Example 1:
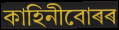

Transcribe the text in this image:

কাহিনীবোৰৰ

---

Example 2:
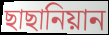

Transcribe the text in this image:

ছাছানিয়ান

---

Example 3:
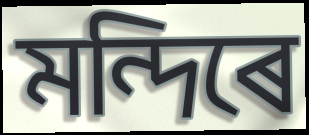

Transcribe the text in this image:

মন্দিৰে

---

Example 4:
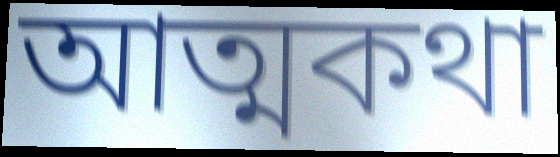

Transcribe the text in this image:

আত্মকথা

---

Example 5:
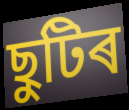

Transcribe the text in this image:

ছুটিৰ